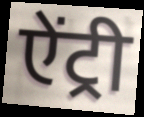
ऐंट्री